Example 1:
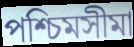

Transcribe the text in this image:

পশ্চিমসীমা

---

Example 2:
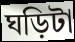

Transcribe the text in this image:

ঘড়িটা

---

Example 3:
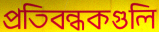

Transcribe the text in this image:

প্রতিবন্ধকগুলি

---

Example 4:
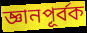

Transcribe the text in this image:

জ্ঞানপূর্বক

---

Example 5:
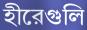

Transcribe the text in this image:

হীরেগুলি